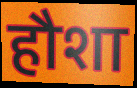
हौशा